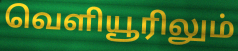
வெளியூரிலும்